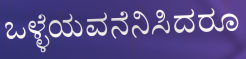
ಒಳ್ಳೆಯವನೆನಿಸಿದರೂ